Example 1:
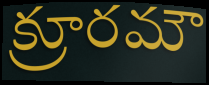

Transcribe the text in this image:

క్రూరమౌ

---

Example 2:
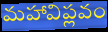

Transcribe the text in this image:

మహావిప్లవం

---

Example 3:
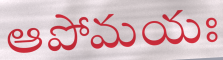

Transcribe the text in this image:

ఆపోమయః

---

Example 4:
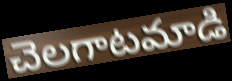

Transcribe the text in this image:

చెలగాటమాడి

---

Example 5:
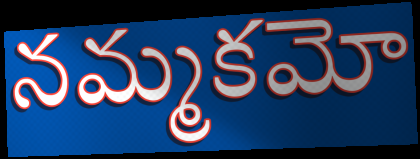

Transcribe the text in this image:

నమ్మకమో